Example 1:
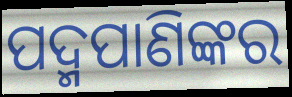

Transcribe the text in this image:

ପଦ୍ମପାଣିଙ୍କର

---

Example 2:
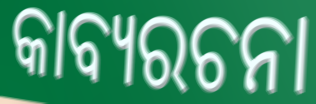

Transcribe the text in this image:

କାବ୍ୟରଚନା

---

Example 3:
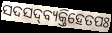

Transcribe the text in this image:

ସଦସଦ୍‌ବ୍ୟକ୍ତିହେତପଃ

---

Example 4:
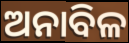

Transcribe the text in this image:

ଅନାବିଳ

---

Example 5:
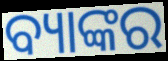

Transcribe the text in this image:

ବ୍ୟାଙ୍କର